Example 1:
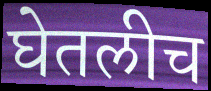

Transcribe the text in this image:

घेतलीच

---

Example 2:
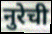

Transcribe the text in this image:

नुरेची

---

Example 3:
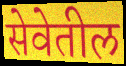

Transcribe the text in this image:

सेवेतील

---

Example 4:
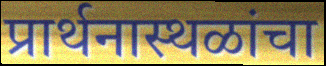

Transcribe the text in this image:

प्रार्थनास्थळांचा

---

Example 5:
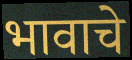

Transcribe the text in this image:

भावाचे